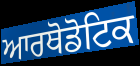
ਆਰਥੋਡੋਟਿਕ